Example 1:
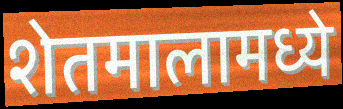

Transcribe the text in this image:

शेतमालामध्ये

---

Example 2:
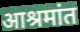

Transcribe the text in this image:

आश्रमांत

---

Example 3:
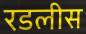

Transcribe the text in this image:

रडलीस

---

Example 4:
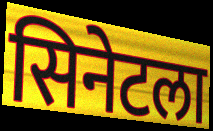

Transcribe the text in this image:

सिनेटला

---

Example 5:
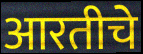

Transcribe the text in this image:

आरतीचे